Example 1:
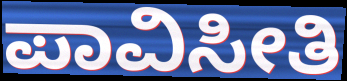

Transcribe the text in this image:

ಪಾವಿಸೀತಿ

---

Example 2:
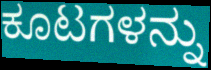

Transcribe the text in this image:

ಕೂಟಗಳನ್ನು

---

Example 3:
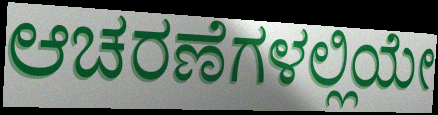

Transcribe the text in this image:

ಆಚರಣೆಗಳಲ್ಲಿಯೇ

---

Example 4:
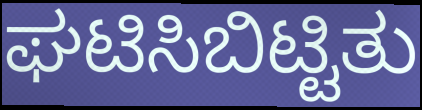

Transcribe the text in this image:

ಘಟಿಸಿಬಿಟ್ಟಿತು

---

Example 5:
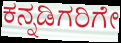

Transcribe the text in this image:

ಕನ್ನಡಿಗರಿಗೇ